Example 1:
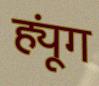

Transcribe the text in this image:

ह्यूंग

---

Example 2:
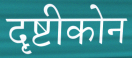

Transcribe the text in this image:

दृष्टीकोन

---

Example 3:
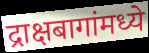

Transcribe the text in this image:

द्राक्षबागांमध्ये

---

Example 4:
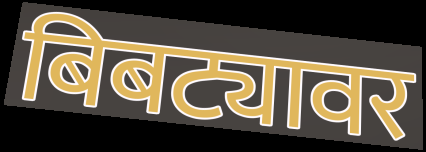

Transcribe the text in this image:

बिबट्यावर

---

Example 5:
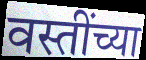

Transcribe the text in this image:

वस्तींच्या